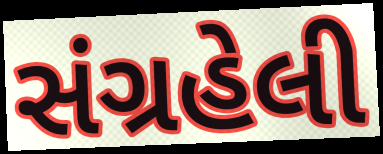
સંગ્રહેલી